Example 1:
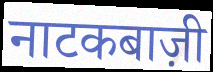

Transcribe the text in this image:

नाटकबाज़ी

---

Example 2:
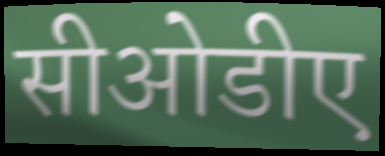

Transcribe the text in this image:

सीओडीए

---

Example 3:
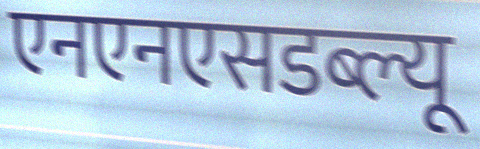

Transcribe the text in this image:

एनएनएसडब्ल्यू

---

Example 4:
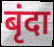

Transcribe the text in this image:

बृंदा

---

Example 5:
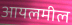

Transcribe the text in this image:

आयलमील